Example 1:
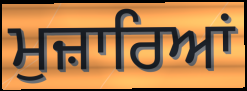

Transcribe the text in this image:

ਮੁਜ਼ਾਰਿਆਂ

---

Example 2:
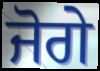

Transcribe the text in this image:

ਜੋਗੇ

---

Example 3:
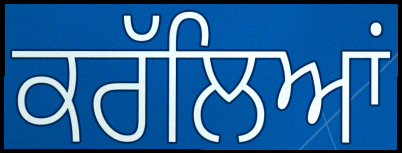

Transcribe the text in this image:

ਕਰੱਲਿਆਂ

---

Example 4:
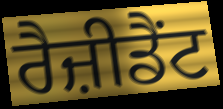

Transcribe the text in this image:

ਰੈਜ਼ੀਡੈਂਟ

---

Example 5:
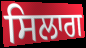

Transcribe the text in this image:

ਸਿਲਾਗ